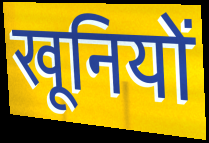
खूनियों